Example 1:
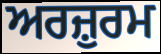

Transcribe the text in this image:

ਅਰਜ਼ੁਰਮ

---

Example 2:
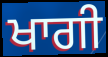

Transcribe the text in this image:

ਖਾਗੀ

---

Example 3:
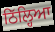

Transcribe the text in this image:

ਠਿੱਲ੍ਹਿਆ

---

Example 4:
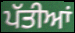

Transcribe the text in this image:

ਪੱਤੀਆਂ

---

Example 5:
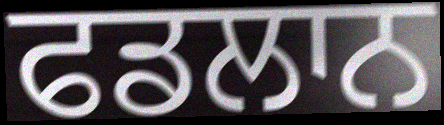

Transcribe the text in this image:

ਫਡਲਾਨ